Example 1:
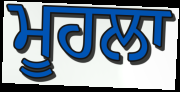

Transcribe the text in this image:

ਮੂਹਲਾ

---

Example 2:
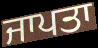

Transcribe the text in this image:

ਜਾਪਤਾ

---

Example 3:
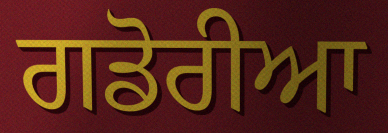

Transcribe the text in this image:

ਗਡੋਰੀਆ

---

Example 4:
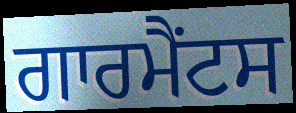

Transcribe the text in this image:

ਗਾਰਮੈਂਟਸ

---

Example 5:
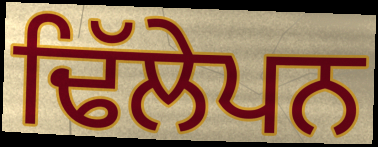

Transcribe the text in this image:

ਢਿੱਲੇਪਨ